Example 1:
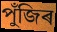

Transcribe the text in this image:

পুঁজিৰ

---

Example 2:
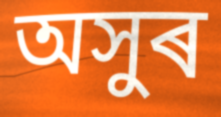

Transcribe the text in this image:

অসুৰ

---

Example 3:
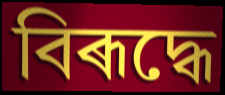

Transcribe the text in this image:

বিৰূদ্ধে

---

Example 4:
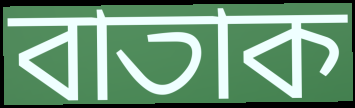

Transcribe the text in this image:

বাতাক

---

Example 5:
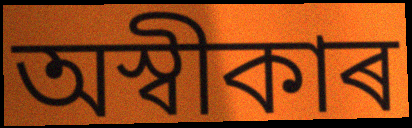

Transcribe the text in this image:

অস্বীকাৰ